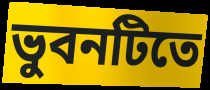
ভুবনটিতে